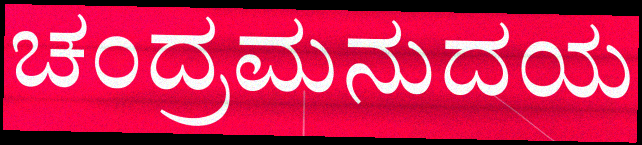
ಚಂದ್ರಮನುದಯ